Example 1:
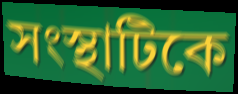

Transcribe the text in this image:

সংস্থাটিকে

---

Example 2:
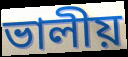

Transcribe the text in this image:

ভালীয়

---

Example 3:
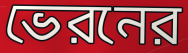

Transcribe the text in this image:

ভেরনের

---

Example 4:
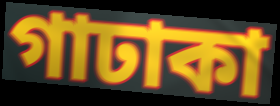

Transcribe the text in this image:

গাঢাকা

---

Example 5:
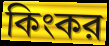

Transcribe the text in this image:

কিংকর